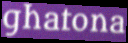
ghatona